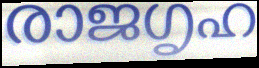
രാജഗൃഹ